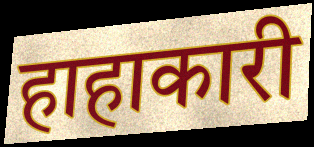
हाहाकारी